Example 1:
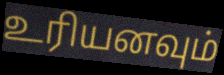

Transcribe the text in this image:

உரியனவும்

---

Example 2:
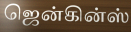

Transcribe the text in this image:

ஜென்கின்ஸ்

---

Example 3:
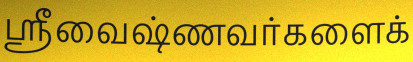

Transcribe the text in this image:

ஸ்ரீவைஷ்ணவர்களைக்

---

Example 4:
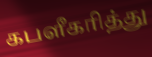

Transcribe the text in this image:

கபளீகரித்து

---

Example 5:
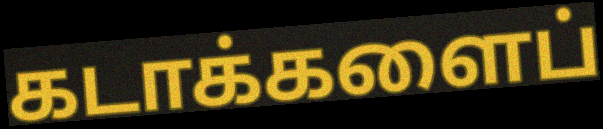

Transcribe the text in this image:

கடாக்களைப்